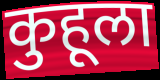
कुहूला